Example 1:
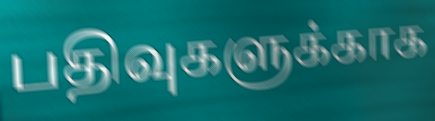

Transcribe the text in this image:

பதிவுகளுக்காக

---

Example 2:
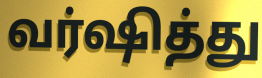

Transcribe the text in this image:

வர்ஷித்து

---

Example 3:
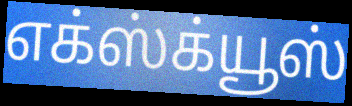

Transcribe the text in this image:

எக்ஸ்க்யூஸ்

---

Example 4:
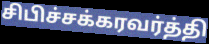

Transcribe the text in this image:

சிபிச்சக்கரவர்த்தி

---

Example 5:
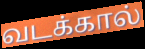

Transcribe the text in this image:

வடக்கால்